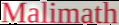
Malimath